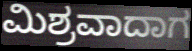
ಮಿಶ್ರವಾದಾಗ